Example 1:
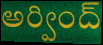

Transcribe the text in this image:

అర్వింద్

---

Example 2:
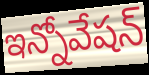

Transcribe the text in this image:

ఇన్నోవేషన్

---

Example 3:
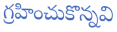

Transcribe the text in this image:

గ్రహించుకొన్నవి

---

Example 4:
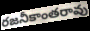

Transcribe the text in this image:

రజనీకాంతరావు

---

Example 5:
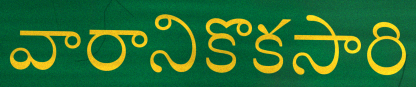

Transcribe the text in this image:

వారానికొకసారి